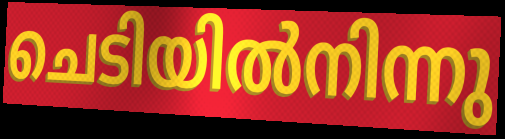
ചെടിയിൽനിന്നു